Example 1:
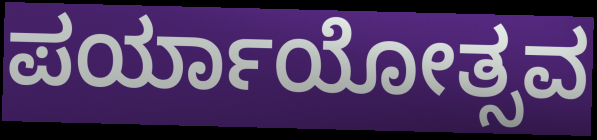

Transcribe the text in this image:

ಪರ್ಯಾಯೋತ್ಸವ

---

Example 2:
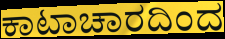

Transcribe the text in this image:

ಕಾಟಾಚಾರದಿಂದ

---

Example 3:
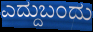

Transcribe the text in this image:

ಎದ್ದುಬಂದು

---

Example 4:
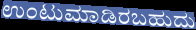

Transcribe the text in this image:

ಉಂಟುಮಾಡಿರಬಹುದು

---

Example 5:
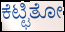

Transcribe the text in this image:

ಕೆಟ್ಟಿತೋ